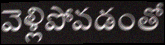
వెళ్లిపోవడంతో